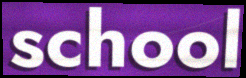
school